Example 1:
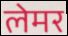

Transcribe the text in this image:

लेमर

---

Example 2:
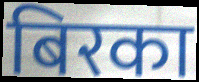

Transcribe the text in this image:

बिरका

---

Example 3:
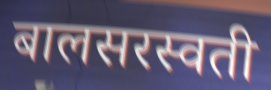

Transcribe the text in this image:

बालसरस्वती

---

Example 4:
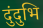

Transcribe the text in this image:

दुंदुभि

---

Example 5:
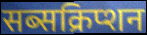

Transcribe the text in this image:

सब्सक्रिप्शन